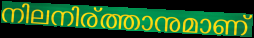
നിലനിര്ത്താനുമാണ്